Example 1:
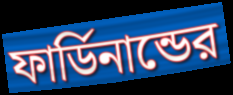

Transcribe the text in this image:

ফার্ডিনান্ডের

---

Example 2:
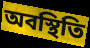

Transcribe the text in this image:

অবস্থিতি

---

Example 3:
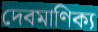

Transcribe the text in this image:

দেবমাণিক্য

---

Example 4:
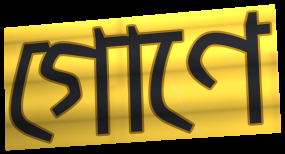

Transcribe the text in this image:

গোণে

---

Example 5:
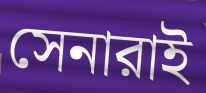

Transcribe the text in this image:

সেনারাই